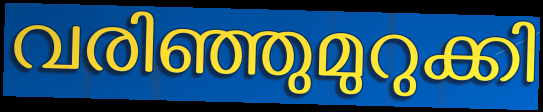
വരിഞ്ഞുമുറുക്കി